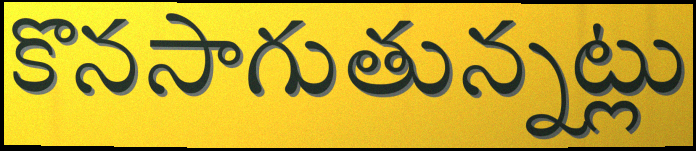
కొనసాగుతున్నట్లు